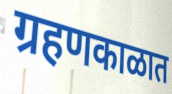
ग्रहणकाळात